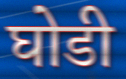
घोडी